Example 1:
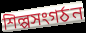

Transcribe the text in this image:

শিল্পসংগঠন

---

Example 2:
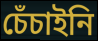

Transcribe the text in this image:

চেঁচাইনি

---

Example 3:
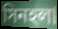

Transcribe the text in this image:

সিনহলা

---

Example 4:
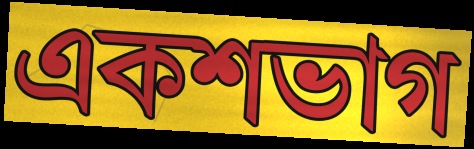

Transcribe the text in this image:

একশভাগ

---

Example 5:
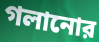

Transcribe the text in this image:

গলানোর